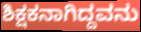
ಶಿಕ್ಷಕನಾಗಿದ್ದವನು